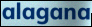
alagana